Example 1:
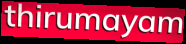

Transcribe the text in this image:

thirumayam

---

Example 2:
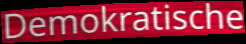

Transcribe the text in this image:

Demokratische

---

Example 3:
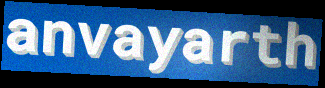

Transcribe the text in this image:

anvayarth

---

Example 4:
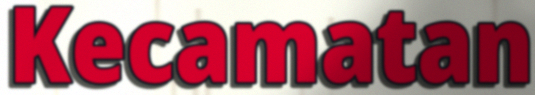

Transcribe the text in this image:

Kecamatan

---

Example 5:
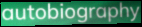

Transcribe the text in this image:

autobiography